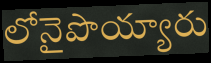
లోనైపొయ్యారు